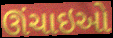
ઊંચાઇઓ